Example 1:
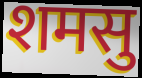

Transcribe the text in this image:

शमसु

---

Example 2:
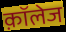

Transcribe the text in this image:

क़ॉलेज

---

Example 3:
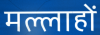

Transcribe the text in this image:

मल्लाहों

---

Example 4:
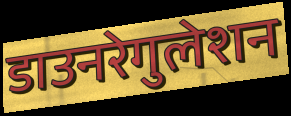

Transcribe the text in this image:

डाउनरेगुलेशन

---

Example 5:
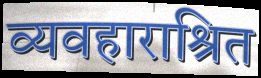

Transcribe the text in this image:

व्यवहाराश्रित